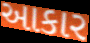
આકાર